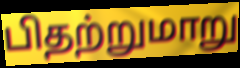
பிதற்றுமாறு